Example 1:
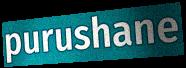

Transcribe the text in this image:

purushane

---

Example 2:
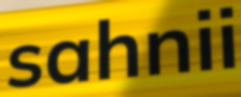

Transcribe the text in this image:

sahnii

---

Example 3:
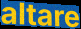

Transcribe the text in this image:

altare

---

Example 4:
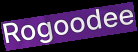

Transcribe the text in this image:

Rogoodee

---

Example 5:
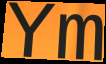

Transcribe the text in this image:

Ym